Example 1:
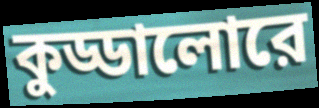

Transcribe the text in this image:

কুড্ডালোরে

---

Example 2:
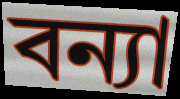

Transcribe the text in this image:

বন্যা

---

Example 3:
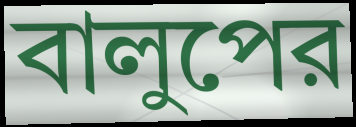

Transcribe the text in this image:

বালুপের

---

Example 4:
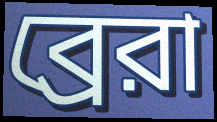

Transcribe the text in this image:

ব্রেরা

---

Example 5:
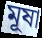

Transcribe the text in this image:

মূষা